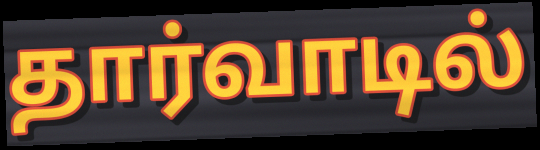
தார்வாடில்